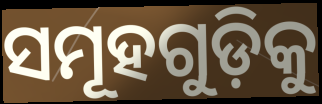
ସମୂହଗୁଡ଼ିକୁ